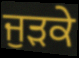
ਜੁੜਕੇ